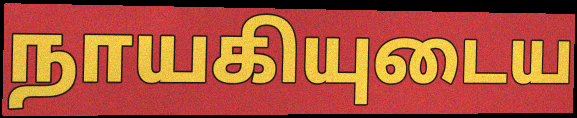
நாயகியுடைய